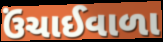
ઉંચાઈવાળા